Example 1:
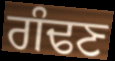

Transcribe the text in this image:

ਗੰਢਣ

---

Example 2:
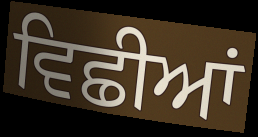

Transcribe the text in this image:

ਵਿਛੀਆਂ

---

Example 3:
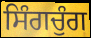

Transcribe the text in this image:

ਸਿੰਗਚੁੰਗ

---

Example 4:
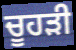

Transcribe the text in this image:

ਚੂਹੜੀ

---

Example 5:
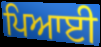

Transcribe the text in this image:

ਪਿਆਈ